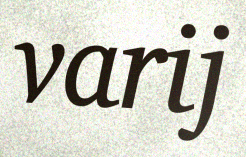
varij